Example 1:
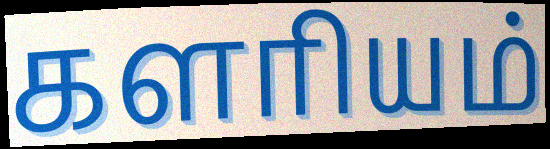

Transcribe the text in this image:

களரியம்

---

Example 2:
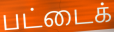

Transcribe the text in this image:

பட்டைக்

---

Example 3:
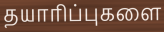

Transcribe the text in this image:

தயாரிப்புகளை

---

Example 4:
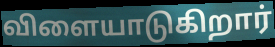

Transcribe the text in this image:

விளையாடுகிறார்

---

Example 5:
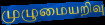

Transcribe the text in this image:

முழுமையறிவு